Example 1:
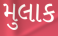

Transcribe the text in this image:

મુલાક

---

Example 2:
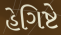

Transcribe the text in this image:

હેગિષ્ટે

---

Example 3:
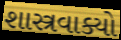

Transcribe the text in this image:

શાસ્ત્રવાક્યો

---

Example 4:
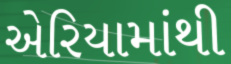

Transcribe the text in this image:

એરિયામાંથી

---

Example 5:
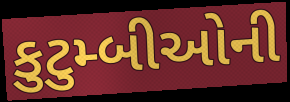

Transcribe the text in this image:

કુટુમ્બીઓની